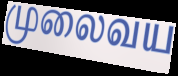
முலைவய